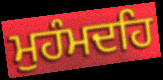
ਮੁਹੰਮਦਹਿ